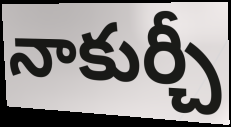
నాకుర్చీ